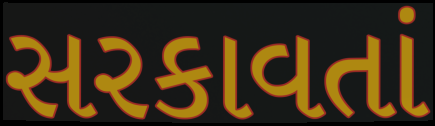
સરકાવતાં